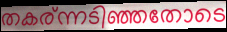
തകര്ന്നടിഞ്ഞതോടെ